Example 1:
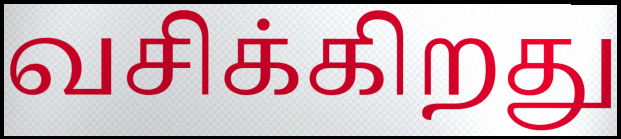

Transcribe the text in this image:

வசிக்கிறது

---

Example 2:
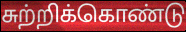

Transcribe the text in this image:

சுற்றிக்கொண்டு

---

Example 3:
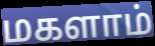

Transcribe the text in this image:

மகளாம்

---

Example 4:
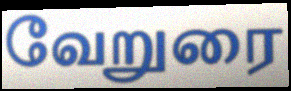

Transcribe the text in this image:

வேறுரை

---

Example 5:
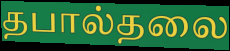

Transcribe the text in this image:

தபால்தலை